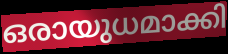
ഒരായുധമാക്കി